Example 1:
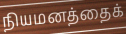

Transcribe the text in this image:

நியமனத்தைக்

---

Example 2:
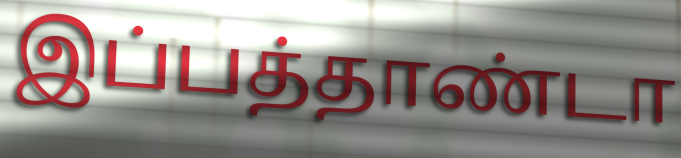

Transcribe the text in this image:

இப்பத்தாண்டா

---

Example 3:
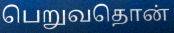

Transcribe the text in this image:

பெறுவதொன்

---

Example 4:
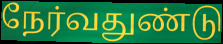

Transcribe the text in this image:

நேர்வதுண்டு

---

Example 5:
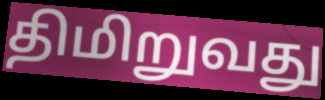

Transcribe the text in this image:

திமிறுவது